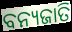
ବନ୍ୟଜାତି